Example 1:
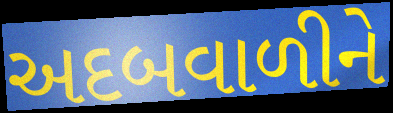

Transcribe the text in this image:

અદબવાળીને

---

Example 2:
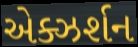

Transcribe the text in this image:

એક્ઝર્શન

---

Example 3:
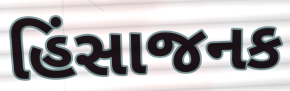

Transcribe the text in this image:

હિંસાજનક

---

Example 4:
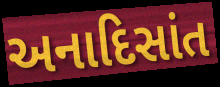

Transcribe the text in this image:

અનાદિસાંત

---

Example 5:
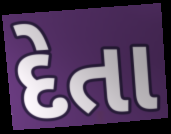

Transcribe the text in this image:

દેતા